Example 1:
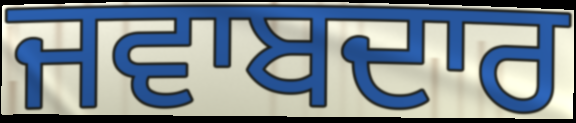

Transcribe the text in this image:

ਜਵਾਬਦਾਰ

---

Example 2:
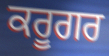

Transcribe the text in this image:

ਕਰੂਗਰ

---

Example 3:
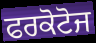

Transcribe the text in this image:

ਫਰਕੋਟੋਜ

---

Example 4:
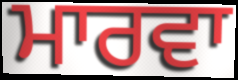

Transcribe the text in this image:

ਮਾਰਵਾ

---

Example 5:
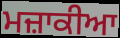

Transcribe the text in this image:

ਮਜ਼ਾਕੀਆ